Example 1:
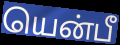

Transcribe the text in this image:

யென்பீ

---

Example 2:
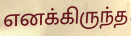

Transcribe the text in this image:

எனக்கிருந்த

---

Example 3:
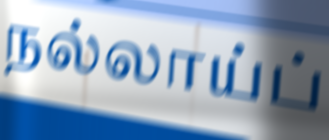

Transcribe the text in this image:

நல்லாய்ப்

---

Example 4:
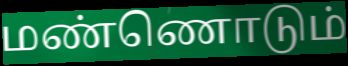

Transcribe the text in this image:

மண்ணொடும்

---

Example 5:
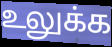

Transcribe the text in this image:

உலுக்க